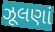
ઝૂલણાં